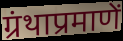
ग्रंथाप्रमाणें